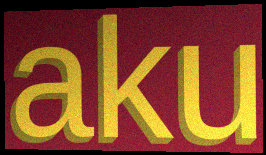
aku